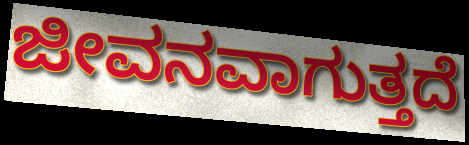
ಜೀವನವಾಗುತ್ತದೆ